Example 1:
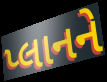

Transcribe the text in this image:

પ્લાનને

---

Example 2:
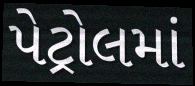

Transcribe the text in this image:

પેટ્રોલમાં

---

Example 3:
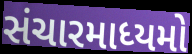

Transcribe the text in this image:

સંચારમાધ્યમો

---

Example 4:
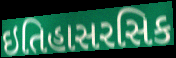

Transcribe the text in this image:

ઇતિહાસરસિક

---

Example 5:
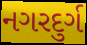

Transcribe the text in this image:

નગરદુર્ગ